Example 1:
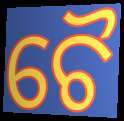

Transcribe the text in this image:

ଚୈ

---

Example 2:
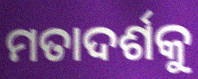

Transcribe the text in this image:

ମତାଦର୍ଶକୁ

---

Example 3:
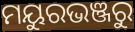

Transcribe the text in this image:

ମୟୁରଭଞ୍ଜରୁ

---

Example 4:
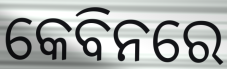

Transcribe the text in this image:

କେବିନରେ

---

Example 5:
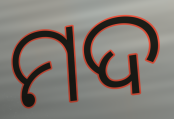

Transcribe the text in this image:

ମଦ